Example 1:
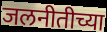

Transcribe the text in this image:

जलनीतीच्या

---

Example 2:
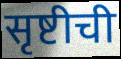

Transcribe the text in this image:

सृष्टीची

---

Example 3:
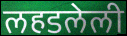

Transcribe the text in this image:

लहडलेली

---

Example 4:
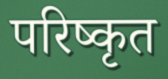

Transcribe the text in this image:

परिष्कृत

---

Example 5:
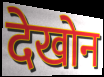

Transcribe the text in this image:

देखोन